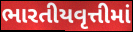
ભારતીયવૃત્તીમાં